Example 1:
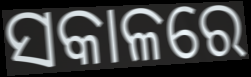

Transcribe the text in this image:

ସକାଳରେ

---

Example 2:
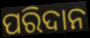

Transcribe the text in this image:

ପରିଦାନ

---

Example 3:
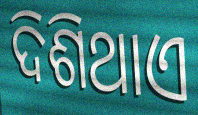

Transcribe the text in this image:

ଦିଶିଥାଏ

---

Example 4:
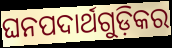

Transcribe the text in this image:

ଘନପଦାର୍ଥଗୁଡ଼ିକର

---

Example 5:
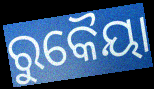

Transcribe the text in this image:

ରୁକୈୟା